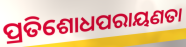
ପ୍ରତିଶୋଧପରାୟଣତା